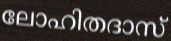
ലോഹിതദാസ്